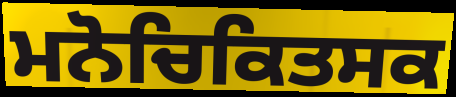
ਮਨੋਚਿਕਿਤਸਕ